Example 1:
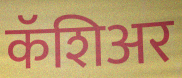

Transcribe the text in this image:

कॅशिअर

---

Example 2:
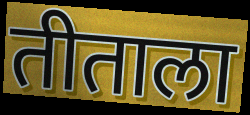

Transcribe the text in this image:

तीताला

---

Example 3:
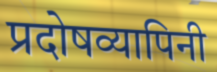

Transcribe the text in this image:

प्रदोषव्यापिनी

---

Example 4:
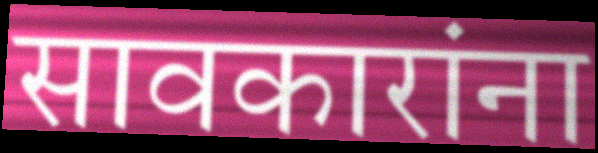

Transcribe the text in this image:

सावकारांना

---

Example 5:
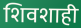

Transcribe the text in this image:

शिवशाही